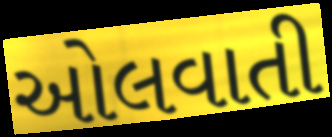
ઓલવાતી